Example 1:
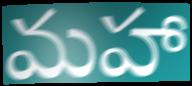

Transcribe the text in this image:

మహా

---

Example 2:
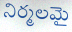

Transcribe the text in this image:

నిర్మలమై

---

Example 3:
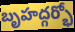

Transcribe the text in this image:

బృహద్గర్భో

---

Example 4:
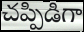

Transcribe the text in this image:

చప్పిడిగా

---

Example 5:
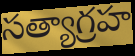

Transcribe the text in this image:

సత్యాగ్రహ